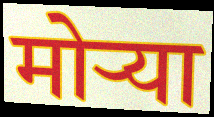
मोर्‍या